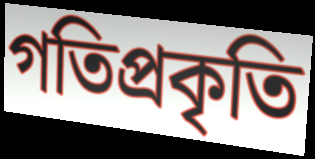
গতিপ্রকৃতি